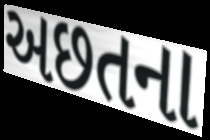
અછતના